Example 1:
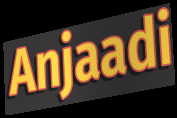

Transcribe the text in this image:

Anjaadi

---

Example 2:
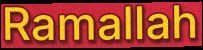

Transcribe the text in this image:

Ramallah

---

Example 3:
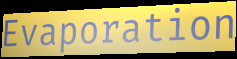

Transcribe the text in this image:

Evaporation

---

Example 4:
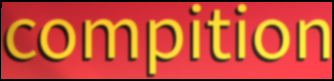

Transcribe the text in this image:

compition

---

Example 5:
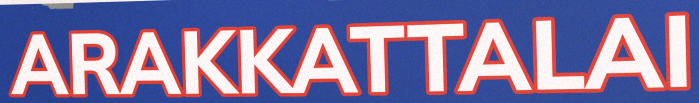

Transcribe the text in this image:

ARAKKATTALAI